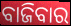
ବାଜିବାର